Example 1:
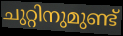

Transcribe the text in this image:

ചുറ്റിനുമുണ്ട്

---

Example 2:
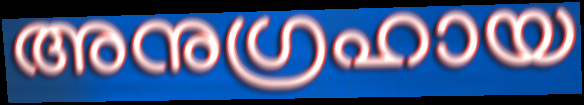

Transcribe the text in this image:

അനുഗ്രഹായ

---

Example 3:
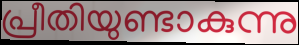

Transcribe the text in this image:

പ്രീതിയുണ്ടാകുന്നു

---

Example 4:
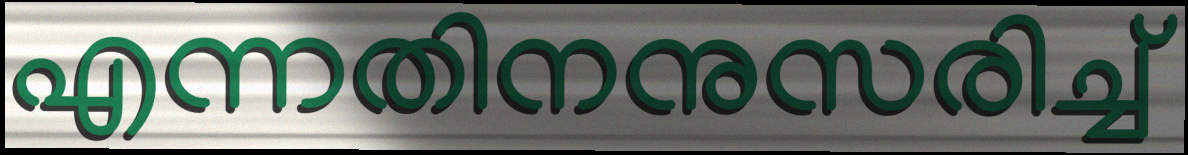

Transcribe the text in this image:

എന്നതിനനുസരിച്ച്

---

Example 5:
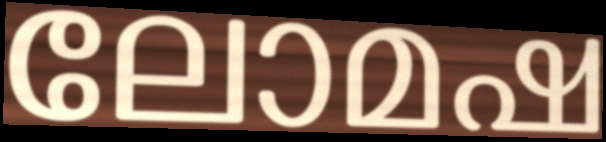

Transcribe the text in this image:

ലോമഷ